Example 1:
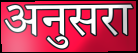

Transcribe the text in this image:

अनुसरा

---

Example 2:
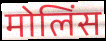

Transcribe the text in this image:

मोलिंस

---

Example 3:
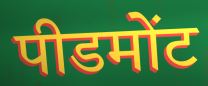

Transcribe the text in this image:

पीडमोंट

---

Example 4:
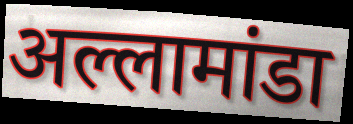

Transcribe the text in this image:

अल्लामांडा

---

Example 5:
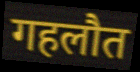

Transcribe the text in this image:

गहलौत